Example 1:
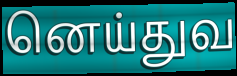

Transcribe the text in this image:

னெய்துவ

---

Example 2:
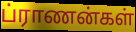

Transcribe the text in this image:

ப்ராணன்கள்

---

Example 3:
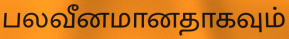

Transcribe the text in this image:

பலவீனமானதாகவும்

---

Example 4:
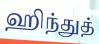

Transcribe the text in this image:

ஹிந்துத்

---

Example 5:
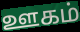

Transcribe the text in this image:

ஊகம்